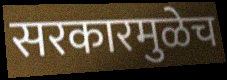
सरकारमुळेच